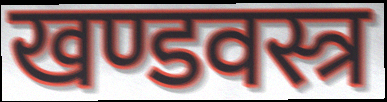
खण्डवस्त्र